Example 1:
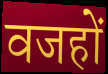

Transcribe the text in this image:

वजहों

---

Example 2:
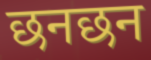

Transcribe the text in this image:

छनछन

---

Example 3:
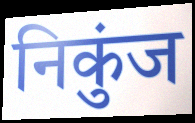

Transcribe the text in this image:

निकुंज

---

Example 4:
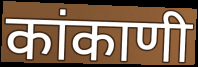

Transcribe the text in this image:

कांकाणी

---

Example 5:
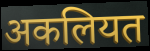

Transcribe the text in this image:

अकलियत